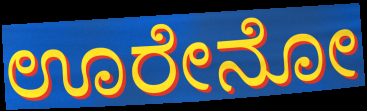
ಊರೇನೋ